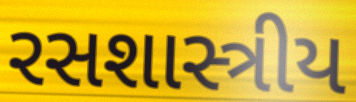
રસશાસ્ત્રીય